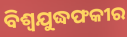
ବିଶ୍ୱଯୁଦ୍ଧଫକୀର